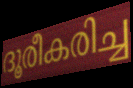
ദൂരീകരിച്ച